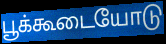
பூக்கூடையோடு